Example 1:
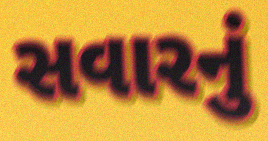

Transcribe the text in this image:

સવારનું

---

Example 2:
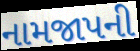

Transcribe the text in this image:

નામજાપની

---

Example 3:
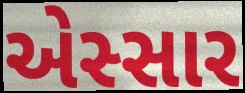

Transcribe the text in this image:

એસ્સાર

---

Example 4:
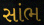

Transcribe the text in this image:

સાંભ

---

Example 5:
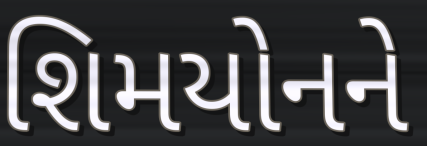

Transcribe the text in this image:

શિમયોનને